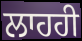
ਲਾਹਹੀ